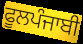
ਫੂਲਪੰਜਾਬੀ